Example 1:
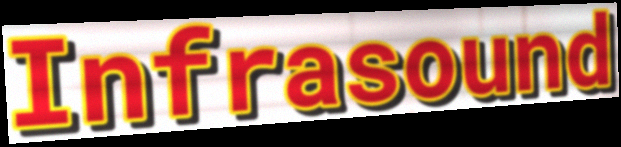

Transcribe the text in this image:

Infrasound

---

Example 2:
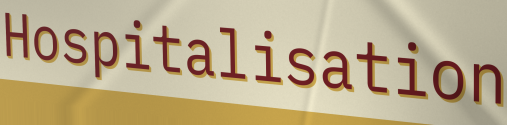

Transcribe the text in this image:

Hospitalisation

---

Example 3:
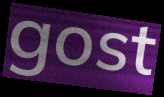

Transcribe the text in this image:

gost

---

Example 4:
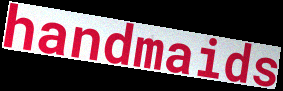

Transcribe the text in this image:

handmaids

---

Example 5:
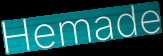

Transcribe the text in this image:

Hemade